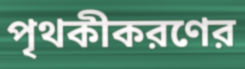
পৃথকীকরণের